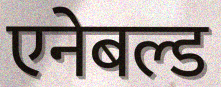
एनेबल्ड